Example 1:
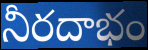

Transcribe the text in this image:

నీరదాభం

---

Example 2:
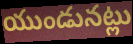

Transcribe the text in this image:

యుండునట్లు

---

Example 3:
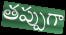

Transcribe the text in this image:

తప్పుగా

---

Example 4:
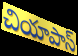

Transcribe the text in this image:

చియాపాస్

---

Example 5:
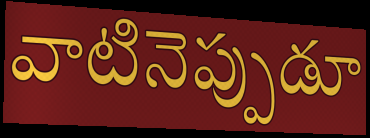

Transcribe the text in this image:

వాటినెప్పుడూ